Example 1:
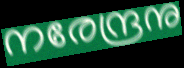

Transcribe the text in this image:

നരേന്ദ്രനു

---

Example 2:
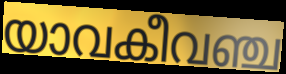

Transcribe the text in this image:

യാവകീവഞ്ച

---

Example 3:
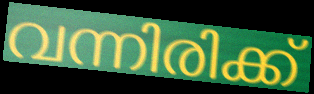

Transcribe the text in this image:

വന്നിരിക്ക്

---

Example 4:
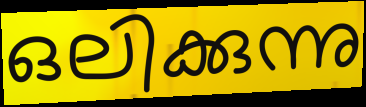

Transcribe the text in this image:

ഒലിക്കുന്നു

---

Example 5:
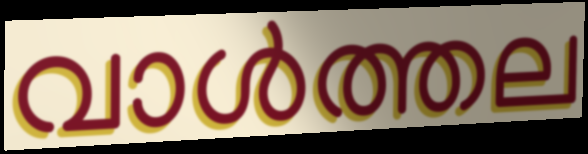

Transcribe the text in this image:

വാൾത്തല